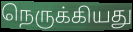
நெருக்கியது